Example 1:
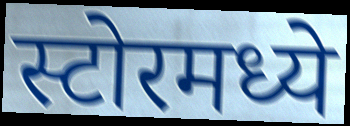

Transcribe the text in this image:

स्टोरमध्ये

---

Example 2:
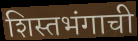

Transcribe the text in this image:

शिस्तभंगाची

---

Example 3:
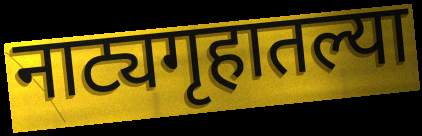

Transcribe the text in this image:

नाट्यगृहातल्या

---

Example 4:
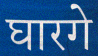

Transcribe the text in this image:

घारगे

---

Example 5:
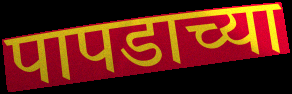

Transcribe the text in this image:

पापडाच्या